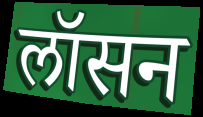
लॉसन